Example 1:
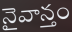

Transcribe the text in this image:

నైవాన్తం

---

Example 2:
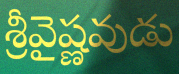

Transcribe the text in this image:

శ్రీవైష్ణవుడు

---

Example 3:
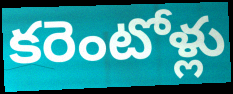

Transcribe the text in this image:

కరెంటోళ్లు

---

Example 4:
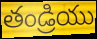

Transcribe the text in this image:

తండ్రియు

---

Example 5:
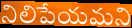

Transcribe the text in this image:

నిలిపేయమని